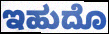
ಇಹುದೊ